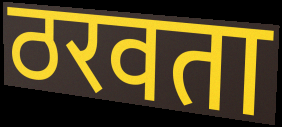
ठरवता